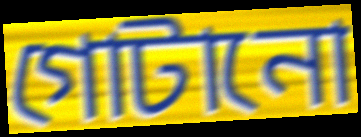
গোটানো